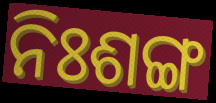
ନିଃଶଙ୍ଗ